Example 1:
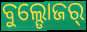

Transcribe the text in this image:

ବୁଲ୍ଡୋଜର୍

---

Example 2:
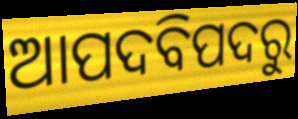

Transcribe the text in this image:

ଆପଦବିପଦରୁ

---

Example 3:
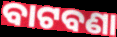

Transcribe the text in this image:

ବାଟବଣା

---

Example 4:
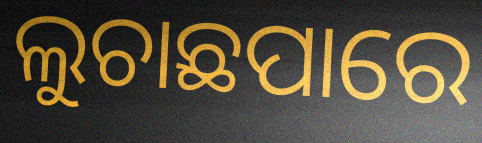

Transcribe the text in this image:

ଲୁଚାଛପାରେ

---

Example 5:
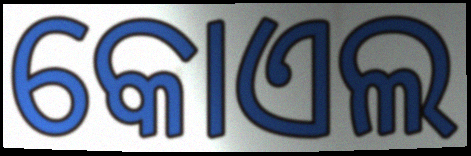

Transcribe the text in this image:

କୋଏଲ